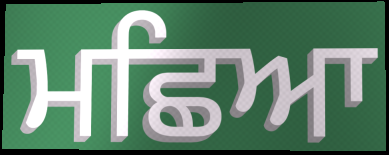
ਮਛਿਆ